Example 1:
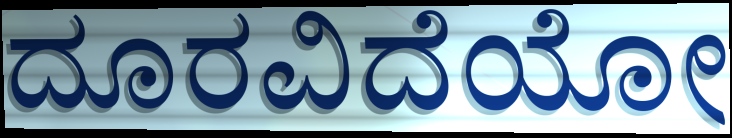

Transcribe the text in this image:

ದೂರವಿದೆಯೋ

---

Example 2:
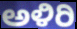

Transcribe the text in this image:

ಅಳಿರಿ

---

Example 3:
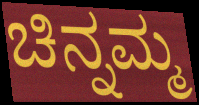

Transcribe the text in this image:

ಚಿನ್ನಮ್ಮ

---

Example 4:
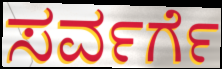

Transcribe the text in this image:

ಸರ್ವರ್ಗೆ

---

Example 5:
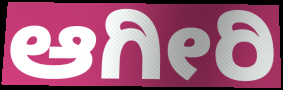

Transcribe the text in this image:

ಆಗೀರಿ